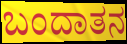
ಬಂದಾತನ